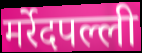
मर्रेदपल्ली